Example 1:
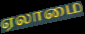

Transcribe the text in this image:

ஏலாமை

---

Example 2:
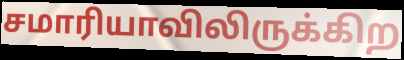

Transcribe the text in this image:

சமாரியாவிலிருக்கிற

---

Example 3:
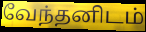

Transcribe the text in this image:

வேந்தனிடம்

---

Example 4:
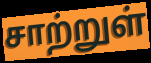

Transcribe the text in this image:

சாற்றுள்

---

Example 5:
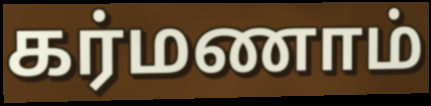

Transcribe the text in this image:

கர்மணாம்